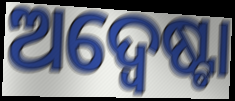
ଅଦ୍ୱେଷ୍ଟା